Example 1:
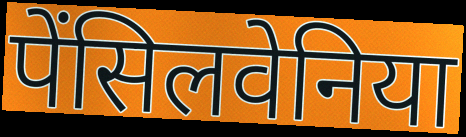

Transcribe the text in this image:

पेंसिलवेनिया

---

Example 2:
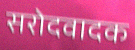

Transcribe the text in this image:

सरोदवादक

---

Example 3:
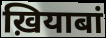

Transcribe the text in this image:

ख़ियाबां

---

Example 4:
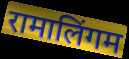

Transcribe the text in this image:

रामालिंगम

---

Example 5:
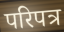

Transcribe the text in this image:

परिपत्र